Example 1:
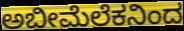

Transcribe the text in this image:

ಅಬೀಮೆಲೆಕನಿಂದ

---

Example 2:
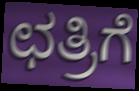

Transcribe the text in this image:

ಛತ್ರಿಗೆ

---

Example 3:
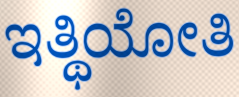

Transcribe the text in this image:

ಇತ್ಥಿಯೋತಿ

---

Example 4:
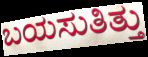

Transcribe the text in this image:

ಬಯಸುತಿತ್ತು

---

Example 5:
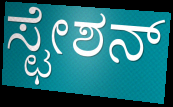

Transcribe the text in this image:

ಸ್ಟೇಶನ್